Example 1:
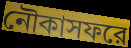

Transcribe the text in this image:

নৌকাসফরে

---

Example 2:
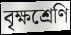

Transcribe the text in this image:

বৃক্ষশ্রেণি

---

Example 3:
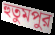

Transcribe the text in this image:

হুতুমপুর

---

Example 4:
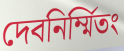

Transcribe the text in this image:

দেবনির্ম্মিতং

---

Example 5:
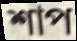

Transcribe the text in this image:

শাপ